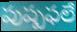
పుష్పఫలే